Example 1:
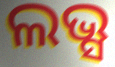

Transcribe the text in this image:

ଲଭ୍ସ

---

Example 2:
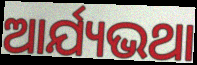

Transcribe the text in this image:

ଆର୍ଯ୍ୟଭଥା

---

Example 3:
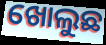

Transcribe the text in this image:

ଖୋଲୁଛ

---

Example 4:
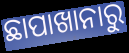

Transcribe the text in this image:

ଛାପାଖାନାରୁ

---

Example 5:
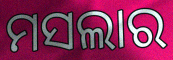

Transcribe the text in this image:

ମସଲାର